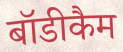
बॉडीकैम